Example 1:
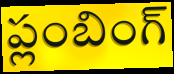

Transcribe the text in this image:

ప్లంబింగ్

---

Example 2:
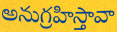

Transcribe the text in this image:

అనుగ్రహిస్తావా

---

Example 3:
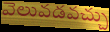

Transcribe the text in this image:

వెలువడవచ్చు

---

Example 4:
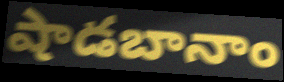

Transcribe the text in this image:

షాడబానాం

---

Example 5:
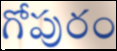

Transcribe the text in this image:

గోపురం